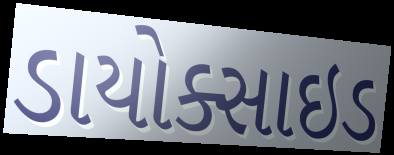
ડાયોક્સાઇડ